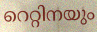
റെറ്റിനയും